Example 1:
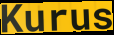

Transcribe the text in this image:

Kurus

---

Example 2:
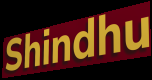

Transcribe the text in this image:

Shindhu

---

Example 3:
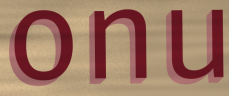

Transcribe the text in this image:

onu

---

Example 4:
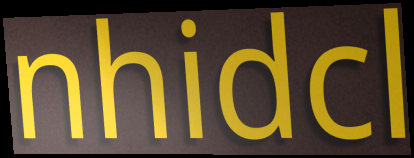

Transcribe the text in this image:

nhidcl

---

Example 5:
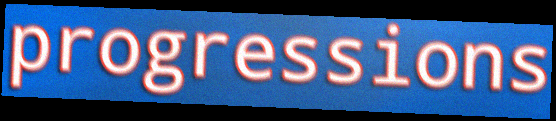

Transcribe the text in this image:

progressions